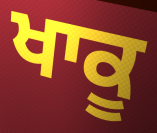
ਖਾਕੂ